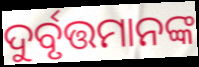
ଦୁର୍ବୃତ୍ତମାନଙ୍କ